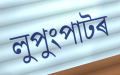
লুপুংপাটৰ